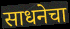
साधनेचा